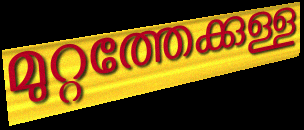
മുറ്റത്തേക്കുള്ള